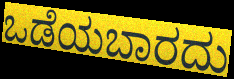
ಒಡೆಯಬಾರದು